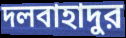
দলবাহাদুর